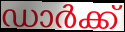
ഡാർക്ക്